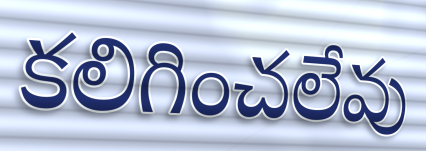
కలిగించలేవు